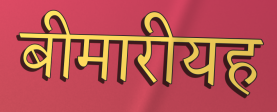
बीमारीयह